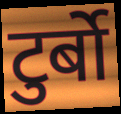
टुर्बो